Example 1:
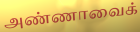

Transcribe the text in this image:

அண்ணாவைக்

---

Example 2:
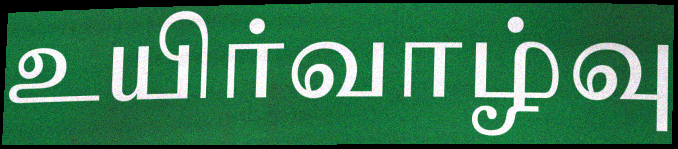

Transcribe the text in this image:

உயிர்வாழ்வு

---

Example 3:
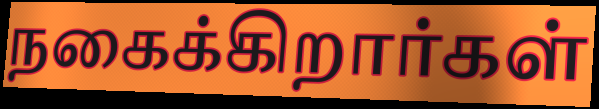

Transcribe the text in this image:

நகைக்கிறார்கள்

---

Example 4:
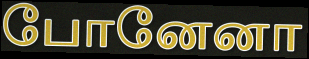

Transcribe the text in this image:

போனேனா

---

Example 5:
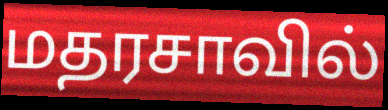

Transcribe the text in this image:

மதரசாவில்